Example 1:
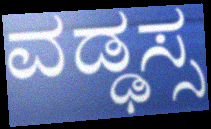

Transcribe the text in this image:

ವಡ್ಢಸ್ಸ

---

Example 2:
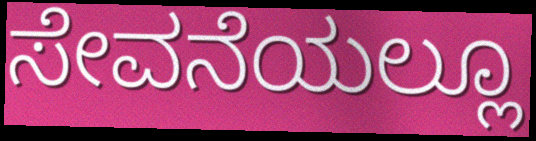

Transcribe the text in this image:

ಸೇವನೆಯಲ್ಲೂ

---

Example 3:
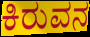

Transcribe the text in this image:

ಕಿರುವನ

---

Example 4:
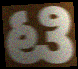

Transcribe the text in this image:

ಟಿ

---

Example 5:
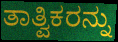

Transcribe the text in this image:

ತಾತ್ವಿಕರನ್ನು